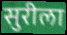
सुरीला